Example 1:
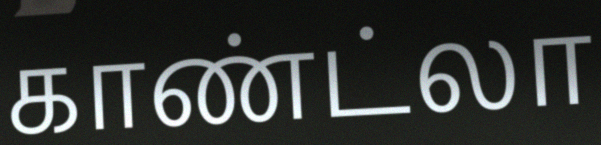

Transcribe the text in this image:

காண்ட்லா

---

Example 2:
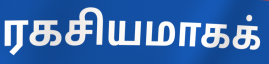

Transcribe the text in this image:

ரகசியமாகக்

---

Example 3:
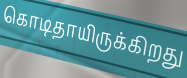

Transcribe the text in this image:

கொடிதாயிருக்கிறது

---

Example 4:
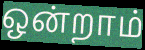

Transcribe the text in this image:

ஒன்றாம்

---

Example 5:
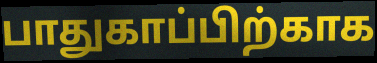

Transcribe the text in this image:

பாதுகாப்பிற்காக